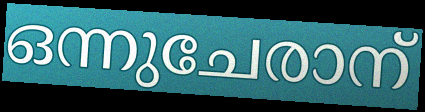
ഒന്നുചേരാന്